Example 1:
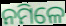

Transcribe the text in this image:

ନମିଳେ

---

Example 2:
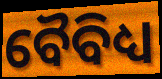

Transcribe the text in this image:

ବୈବିଧ୍ୟ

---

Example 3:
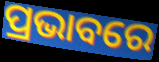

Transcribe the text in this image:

ପ୍ରଭାବରେ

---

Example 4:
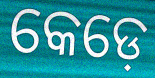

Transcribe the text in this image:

କେଡ଼େ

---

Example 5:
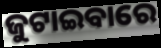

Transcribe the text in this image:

ଜୁଟାଇବାରେ